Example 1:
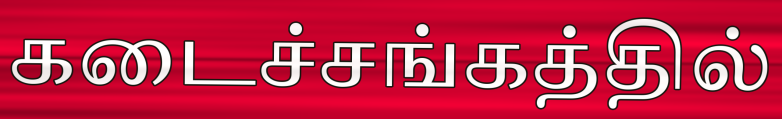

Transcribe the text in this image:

கடைச்சங்கத்தில்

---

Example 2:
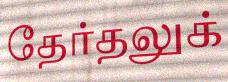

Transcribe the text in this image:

தேர்தலுக்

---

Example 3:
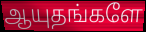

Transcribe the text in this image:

ஆயுதங்களே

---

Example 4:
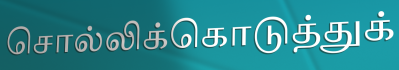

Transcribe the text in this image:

சொல்லிக்கொடுத்துக்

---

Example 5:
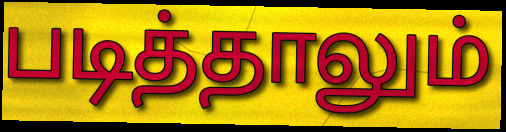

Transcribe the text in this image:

படித்தாலும்